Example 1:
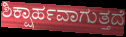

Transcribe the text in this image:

ಶಿಕ್ಷಾರ್ಹವಾಗುತ್ತದೆ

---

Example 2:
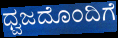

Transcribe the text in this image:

ಧ್ವಜದೊಂದಿಗೆ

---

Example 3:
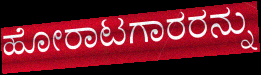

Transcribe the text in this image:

ಹೋರಾಟಗಾರರನ್ನು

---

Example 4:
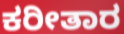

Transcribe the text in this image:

ಕರೀತಾರ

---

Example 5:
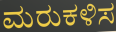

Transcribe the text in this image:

ಮರುಕಳಿಸ